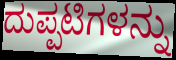
ದುಪ್ಪಟಿಗಳನ್ನು